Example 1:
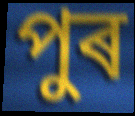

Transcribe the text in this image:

পুৰ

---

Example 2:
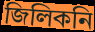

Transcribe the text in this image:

জিলিকনি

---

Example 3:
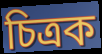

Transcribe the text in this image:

চিত্ৰক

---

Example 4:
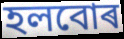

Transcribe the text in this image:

হলবোৰ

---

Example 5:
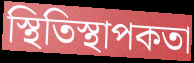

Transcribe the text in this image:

স্থিতিস্থাপকতা